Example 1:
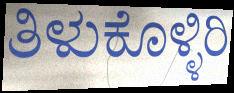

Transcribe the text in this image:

ತಿಳುಕೊಳ್ಳಿರಿ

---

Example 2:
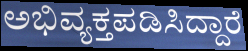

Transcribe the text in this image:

ಅಭಿವ್ಯಕ್ತಪಡಿಸಿದ್ದಾರೆ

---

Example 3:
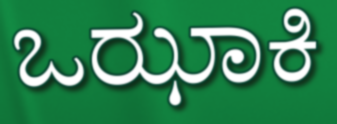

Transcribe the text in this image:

ಒಝಾಕಿ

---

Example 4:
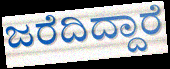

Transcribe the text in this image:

ಜರೆದಿದ್ದಾರೆ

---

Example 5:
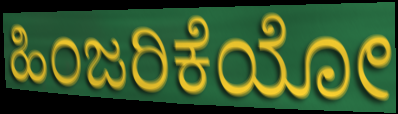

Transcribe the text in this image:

ಹಿಂಜರಿಕೆಯೋ